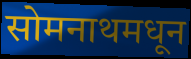
सोमनाथमधून